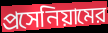
প্রসেনিয়ামের